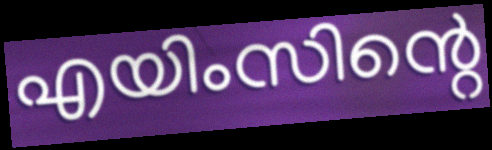
എയിംസിന്റെ